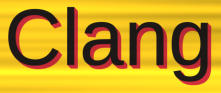
Clang